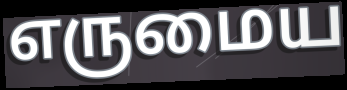
எருமைய